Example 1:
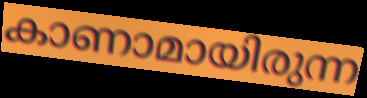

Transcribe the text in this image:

കാണാമായിരുന്ന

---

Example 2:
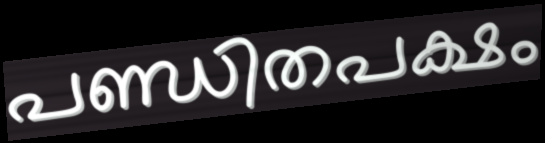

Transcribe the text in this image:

പണ്ഡിതപക്ഷം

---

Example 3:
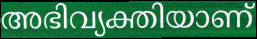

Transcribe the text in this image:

അഭിവ്യക്തിയാണ്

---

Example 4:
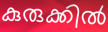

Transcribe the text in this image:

കുരുക്കിൽ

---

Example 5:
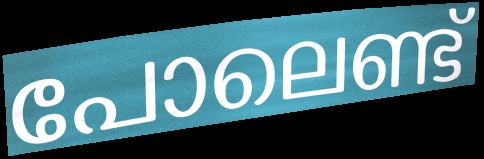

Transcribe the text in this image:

പോലെണ്ട്